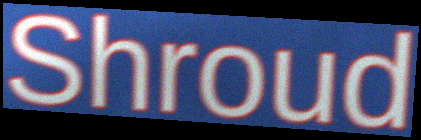
Shroud